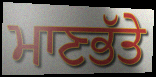
ਮਾਣਭੱਤੇ